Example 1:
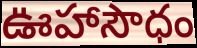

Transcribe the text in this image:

ఊహాసౌధం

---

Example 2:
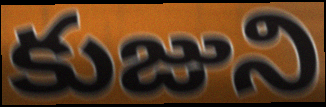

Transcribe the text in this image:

కుజుని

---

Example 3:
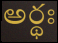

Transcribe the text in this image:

అర్థః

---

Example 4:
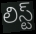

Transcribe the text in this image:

లిస్ట్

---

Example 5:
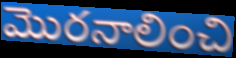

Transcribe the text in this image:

మొరనాలించి